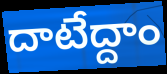
దాటేద్దాం